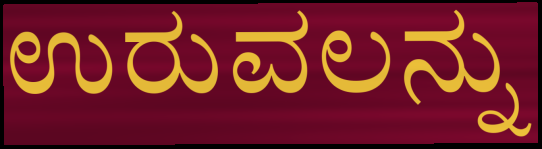
ಉರುವಲನ್ನು